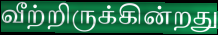
வீற்றிருக்கின்றது